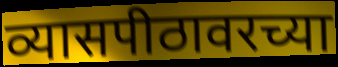
व्यासपीठावरच्या